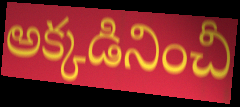
అక్కడినించీ